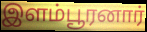
இளம்பூரனார்